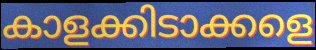
കാളക്കിടാക്കളെ